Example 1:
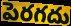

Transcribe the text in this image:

పెరగదు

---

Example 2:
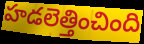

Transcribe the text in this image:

హడలెత్తించింది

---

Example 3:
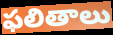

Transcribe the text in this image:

ఫలితాలు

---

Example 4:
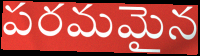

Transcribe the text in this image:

పరమమైన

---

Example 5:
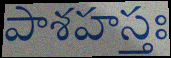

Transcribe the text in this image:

పాశహస్తః